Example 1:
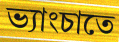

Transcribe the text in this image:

ভ্যাংচাতে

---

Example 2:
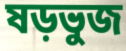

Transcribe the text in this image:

ষড়ভুজ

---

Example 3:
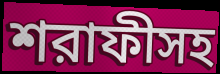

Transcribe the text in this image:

শরাফীসহ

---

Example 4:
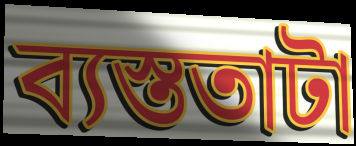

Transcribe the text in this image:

ব্যস্ততাটা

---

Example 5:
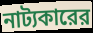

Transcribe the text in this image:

নাট্যকারের